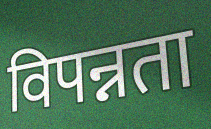
विपन्नता